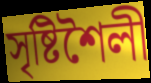
সৃষ্টিশৈলী